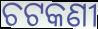
ଚଟକଣୀ